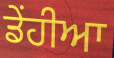
ਡੇਂਹੀਆ